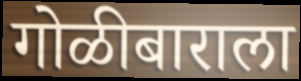
गोळीबाराला